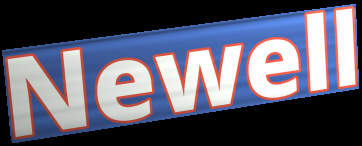
Newell